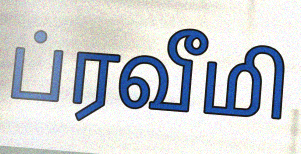
ப்ரவீமி